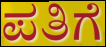
ಪತಿಗೆ